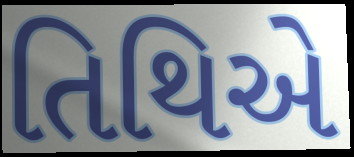
તિથિએ